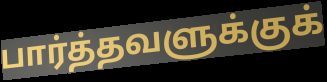
பார்த்தவளுக்குக்